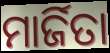
ମାର୍ଜିତା